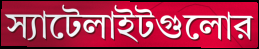
স্যাটেলাইটগুলোর